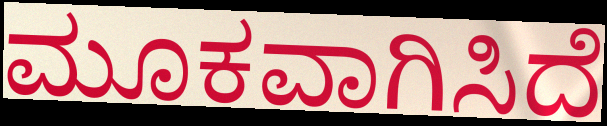
ಮೂಕವಾಗಿಸಿದೆ